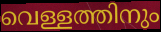
വെള്ളത്തിനും